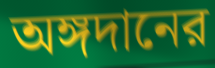
অঙ্গদানের